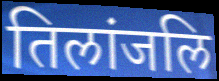
तिलांजलि